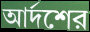
আর্দশের